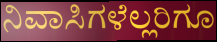
ನಿವಾಸಿಗಳೆಲ್ಲರಿಗೂ